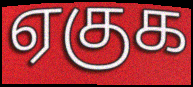
ஏகுக